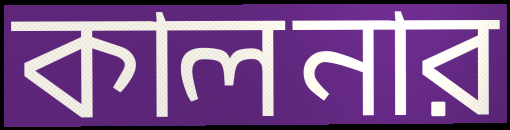
কালনার